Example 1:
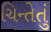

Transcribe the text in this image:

ચિન્તેતું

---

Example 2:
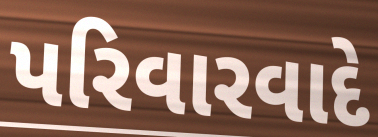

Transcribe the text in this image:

પરિવારવાદે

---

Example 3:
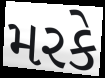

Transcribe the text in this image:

મરકે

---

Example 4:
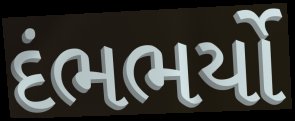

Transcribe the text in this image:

દંભભર્યો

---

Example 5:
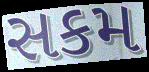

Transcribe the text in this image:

સકમ